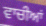
ਵਾਚੀਆਂ